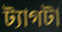
ট্যাগটা